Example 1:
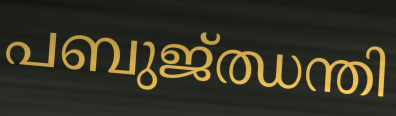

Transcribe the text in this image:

പബുജ്ഝന്തി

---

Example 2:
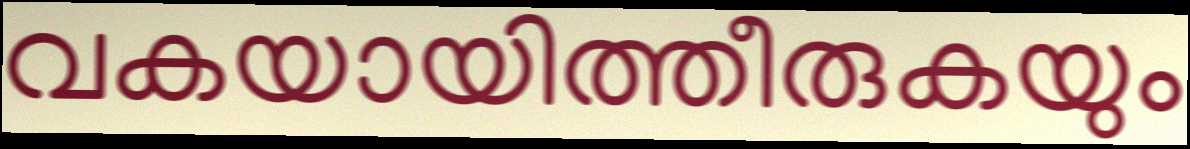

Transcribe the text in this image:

വകയായിത്തീരുകയും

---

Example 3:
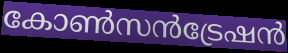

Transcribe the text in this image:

കോൺസൻട്രേഷൻ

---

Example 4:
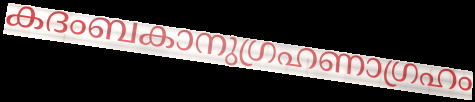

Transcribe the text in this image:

കദംബകാനുഗ്രഹണാഗ്രഹം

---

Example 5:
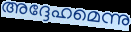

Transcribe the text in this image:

അദ്ദേഹമെന്നു